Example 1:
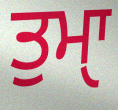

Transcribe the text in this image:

ਤੁਮਾੑ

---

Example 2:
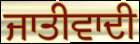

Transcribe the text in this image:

ਜਾਤੀਵਾਦੀ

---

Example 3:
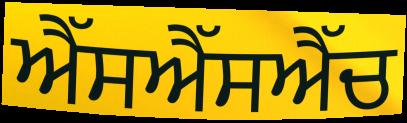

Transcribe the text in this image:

ਐੱਸਐੱਸਐੱਚ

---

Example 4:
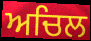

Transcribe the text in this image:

ਅਚਿਲ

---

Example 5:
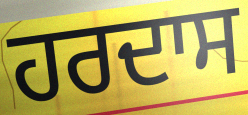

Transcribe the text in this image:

ਹਰਦਾਸ